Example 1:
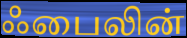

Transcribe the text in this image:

ஃபைலின்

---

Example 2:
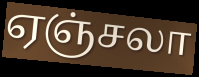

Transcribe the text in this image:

ஏஞ்சலா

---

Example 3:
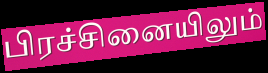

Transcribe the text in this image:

பிரச்சினையிலும்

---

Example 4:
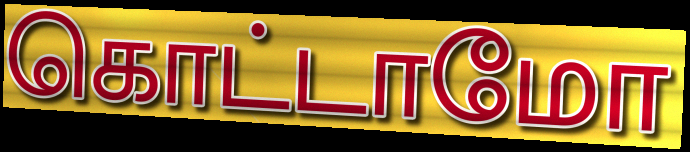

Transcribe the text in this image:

கொட்டாமோ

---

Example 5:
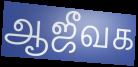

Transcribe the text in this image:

ஆஜீவக